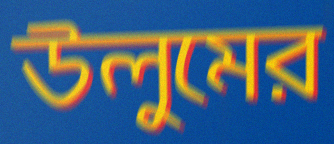
উলুমের